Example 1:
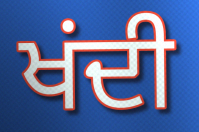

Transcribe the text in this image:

ਖਂਦੀ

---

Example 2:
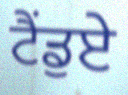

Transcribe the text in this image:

ਟੈਂਡੁਏ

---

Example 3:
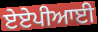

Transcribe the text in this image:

ਏਏਪੀਆਈ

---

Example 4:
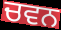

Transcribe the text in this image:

ਚਵਨ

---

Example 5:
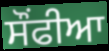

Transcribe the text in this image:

ਸੌਂਫੀਆ